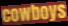
cowboys